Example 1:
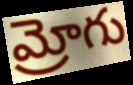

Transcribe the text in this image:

మ్రోగు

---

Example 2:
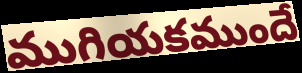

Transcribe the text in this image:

ముగియకముందే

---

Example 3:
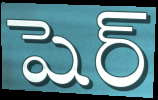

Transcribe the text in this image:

షెర్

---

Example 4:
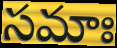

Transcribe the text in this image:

సమాః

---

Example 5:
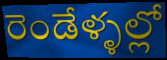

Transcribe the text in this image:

రెండేళ్ళల్లో